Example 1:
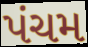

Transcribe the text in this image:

પંચમ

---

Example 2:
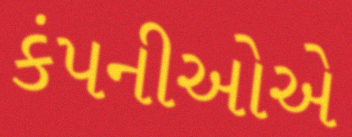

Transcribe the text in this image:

કંપનીઓએ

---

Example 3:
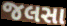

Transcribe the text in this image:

જલસા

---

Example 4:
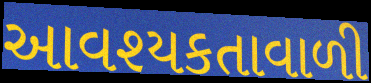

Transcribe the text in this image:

આવશ્યકતાવાળી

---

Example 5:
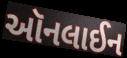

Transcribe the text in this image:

ઑનલાઈન